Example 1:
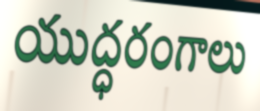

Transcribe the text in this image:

యుద్ధరంగాలు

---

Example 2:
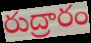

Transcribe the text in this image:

రుద్రారం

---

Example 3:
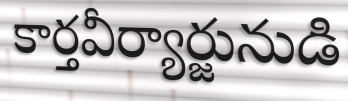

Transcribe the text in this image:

కార్తవీర్యార్జునుడి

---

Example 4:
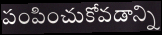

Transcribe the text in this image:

పంపించుకోవడాన్ని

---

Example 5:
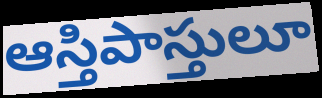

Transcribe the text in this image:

ఆస్తిపాస్తులూ